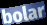
bolar